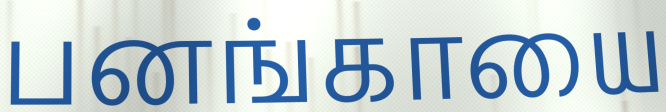
பனங்காயை